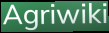
Agriwiki